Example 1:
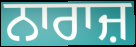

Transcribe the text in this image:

ਨਾਰਾਜ਼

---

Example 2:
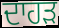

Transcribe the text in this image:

ਦਾਹੜ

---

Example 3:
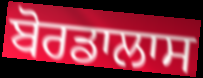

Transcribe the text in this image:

ਬੋਰਡਾਲਾਸ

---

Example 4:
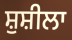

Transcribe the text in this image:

ਸ਼ੁਸ਼ੀਲਾ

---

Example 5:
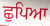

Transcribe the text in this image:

ਛੁਪਿਆ